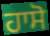
ਹਾਸੋ